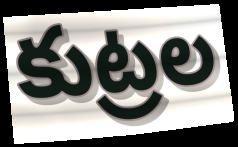
కుట్రల